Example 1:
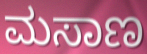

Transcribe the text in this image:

ಮಸಾಣ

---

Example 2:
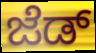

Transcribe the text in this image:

ಜೆಡ್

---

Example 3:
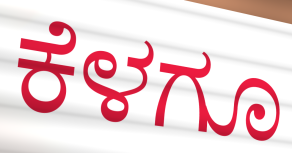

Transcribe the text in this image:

ಕೆಳಗೂ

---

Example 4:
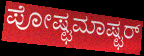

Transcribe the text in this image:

ಪೋಷ್ಟಮಾಷ್ಟರ್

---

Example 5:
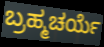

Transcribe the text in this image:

ಬ್ರಹ್ಮಚರ್ಯೆ